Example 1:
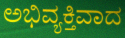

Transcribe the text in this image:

ಅಭಿವ್ಯಕ್ತಿವಾದ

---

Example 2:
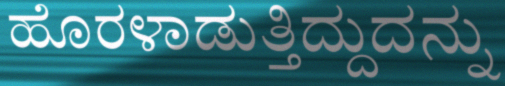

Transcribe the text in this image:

ಹೊರಳಾಡುತ್ತಿದ್ದುದನ್ನು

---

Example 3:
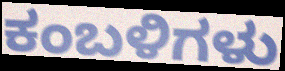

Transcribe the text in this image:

ಕಂಬಳಿಗಳು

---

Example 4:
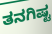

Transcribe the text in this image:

ತನಗಿಷ್ಟ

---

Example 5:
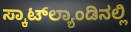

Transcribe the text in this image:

ಸ್ಕಾಟ್‌ಲ್ಯಾಂಡಿನಲ್ಲಿ